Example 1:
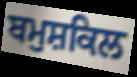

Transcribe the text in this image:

ਬਮੁਸ਼ਕਿਲ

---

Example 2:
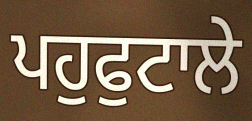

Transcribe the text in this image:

ਪਹੁਫੁਟਾਲੇ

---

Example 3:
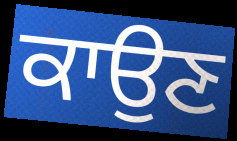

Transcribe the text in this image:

ਕਾਉਣ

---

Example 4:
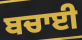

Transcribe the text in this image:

ਬਚਾਈ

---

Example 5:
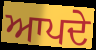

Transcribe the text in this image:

ਆਪਦੇ